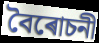
বৈৰোচনী